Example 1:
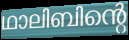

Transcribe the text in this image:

ഥാലിബിന്റെ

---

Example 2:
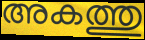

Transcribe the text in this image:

അകത്തു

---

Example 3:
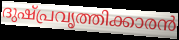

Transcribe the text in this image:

ദുഷ്പ്രവൃത്തിക്കാരൻ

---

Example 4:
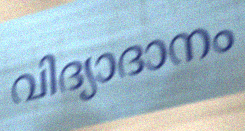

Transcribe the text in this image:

വിദ്യാദാനം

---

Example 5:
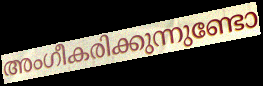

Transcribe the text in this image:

അംഗീകരിക്കുന്നുണ്ടോ